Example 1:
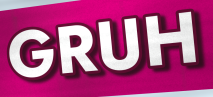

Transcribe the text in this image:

GRUH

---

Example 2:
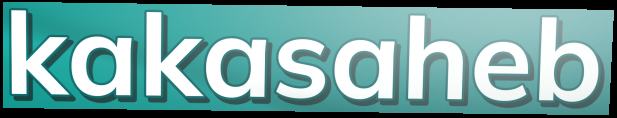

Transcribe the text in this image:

kakasaheb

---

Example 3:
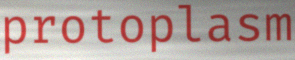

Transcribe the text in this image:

protoplasm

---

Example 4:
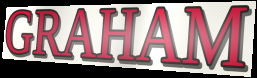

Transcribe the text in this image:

GRAHAM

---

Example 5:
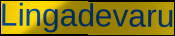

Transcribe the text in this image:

Lingadevaru